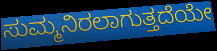
ಸುಮ್ಮನಿರಲಾಗುತ್ತದೆಯೇ